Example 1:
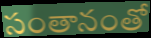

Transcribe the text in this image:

సంతానంతో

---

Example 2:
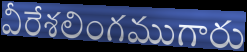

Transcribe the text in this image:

వీరేశలింగముగారు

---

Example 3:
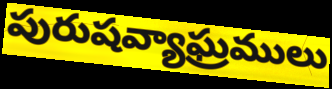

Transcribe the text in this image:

పురుషవ్యాఘ్రములు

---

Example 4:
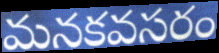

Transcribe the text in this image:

మనకవసరం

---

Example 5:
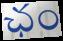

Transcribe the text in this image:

ఛం